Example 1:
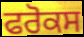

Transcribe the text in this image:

ਫਰੋਕਸ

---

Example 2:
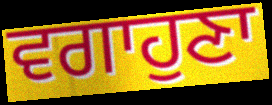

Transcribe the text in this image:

ਵਗਾਹੁਣਾ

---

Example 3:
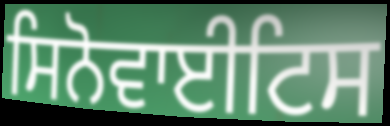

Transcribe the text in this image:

ਸਿਨੋਵਾਈਟਿਸ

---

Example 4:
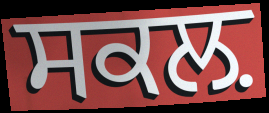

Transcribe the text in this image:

ਸਕਲ਼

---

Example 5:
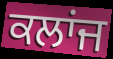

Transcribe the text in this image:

ਕਲਾਂਜ